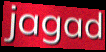
jagad